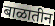
बाळातीन